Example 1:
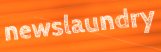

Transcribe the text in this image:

newslaundry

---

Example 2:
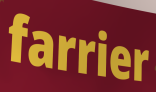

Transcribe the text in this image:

farrier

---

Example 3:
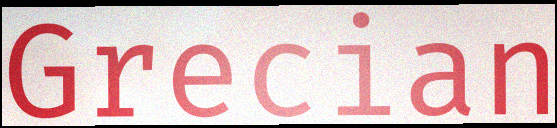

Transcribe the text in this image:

Grecian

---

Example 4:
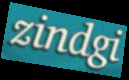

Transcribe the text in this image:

zindgi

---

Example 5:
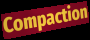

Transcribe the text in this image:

Compaction